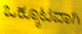
ಒಕ್ಕೂಟವಾಗಿ